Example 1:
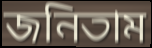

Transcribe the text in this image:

জনিতাম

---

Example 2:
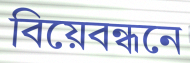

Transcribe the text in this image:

বিয়েবন্ধনে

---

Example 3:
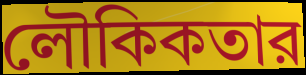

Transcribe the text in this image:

লৌকিকতার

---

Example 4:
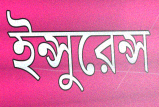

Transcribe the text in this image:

ইন্সুরেন্স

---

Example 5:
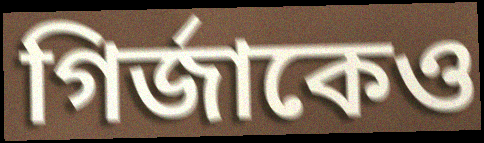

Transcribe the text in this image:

গির্জাকেও